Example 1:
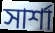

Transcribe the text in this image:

সার্শা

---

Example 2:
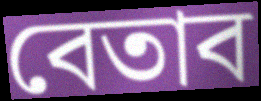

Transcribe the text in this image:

বেতাব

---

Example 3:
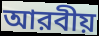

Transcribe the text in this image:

আরবীয়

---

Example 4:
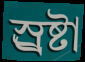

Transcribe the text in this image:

স্র্রষ্টা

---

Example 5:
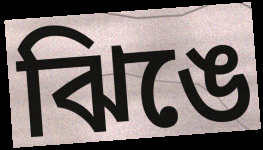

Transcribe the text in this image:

ঝিঙে